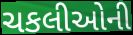
ચકલીઓની